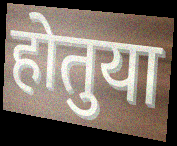
होतुया